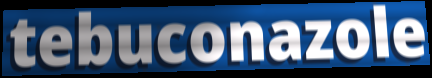
tebuconazole